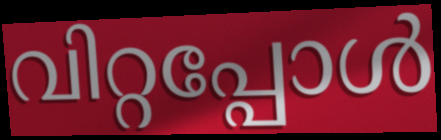
വിറ്റപ്പോൾ